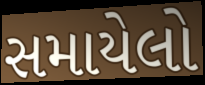
સમાયેલો